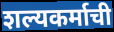
शल्यकर्माची